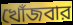
খোঁজবার